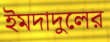
ইমদাদুলের